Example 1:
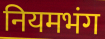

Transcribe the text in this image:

नियमभंग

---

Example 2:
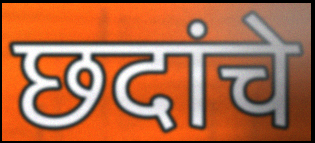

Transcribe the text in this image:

छदांचे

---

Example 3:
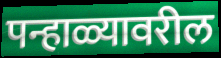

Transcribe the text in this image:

पन्हाळ्यावरील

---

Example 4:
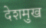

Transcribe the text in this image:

देशमुख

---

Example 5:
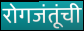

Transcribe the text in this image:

रोगजंतूंची